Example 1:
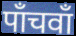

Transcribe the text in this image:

पाँचवाँ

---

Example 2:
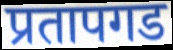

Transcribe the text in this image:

प्रतापगड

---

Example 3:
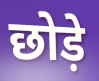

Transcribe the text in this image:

छोड़े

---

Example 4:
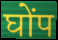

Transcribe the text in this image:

घोंप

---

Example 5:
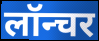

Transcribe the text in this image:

लॉन्चर